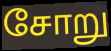
சோறு